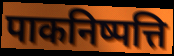
पाकनिष्पत्ति